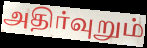
அதிர்வுறும்